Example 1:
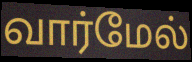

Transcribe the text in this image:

வார்மேல்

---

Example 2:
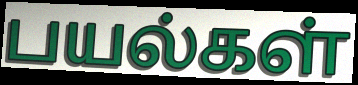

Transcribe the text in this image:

பயல்கள்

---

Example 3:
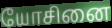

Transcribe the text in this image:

யோசினை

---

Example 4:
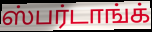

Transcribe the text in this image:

ஸ்பர்டாங்க்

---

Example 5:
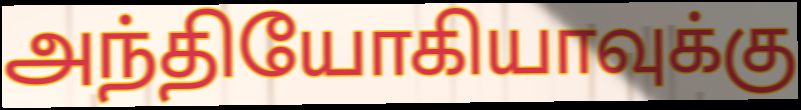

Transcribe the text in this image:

அந்தியோகியாவுக்கு